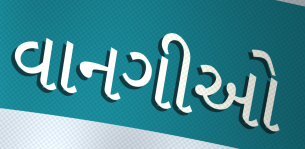
વાનગીઓ